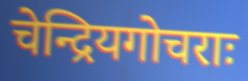
चेन्द्रियगोचराः